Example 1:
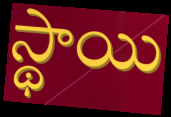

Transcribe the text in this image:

స్థాయి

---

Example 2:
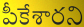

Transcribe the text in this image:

పీకేశారని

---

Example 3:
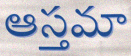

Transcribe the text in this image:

ఆస్తమా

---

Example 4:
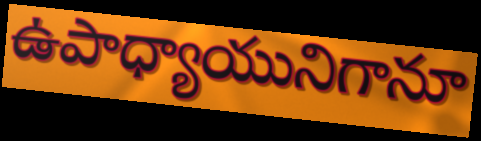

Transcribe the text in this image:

ఉపాధ్యాయునిగానూ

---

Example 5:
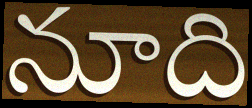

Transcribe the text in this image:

నూది